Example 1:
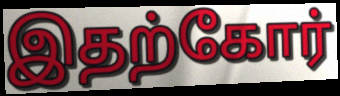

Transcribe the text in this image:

இதற்கோர்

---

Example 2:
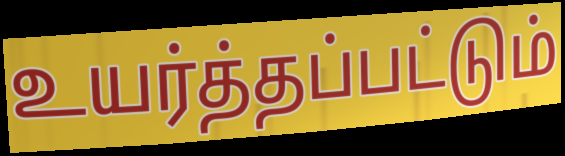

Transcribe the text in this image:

உயர்த்தப்பட்டும்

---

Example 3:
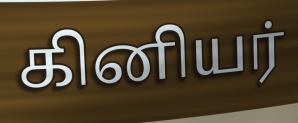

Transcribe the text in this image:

கினியர்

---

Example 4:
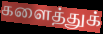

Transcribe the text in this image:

களைத்துக்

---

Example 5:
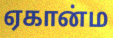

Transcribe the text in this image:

ஏகான்ம